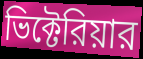
ভিক্টেরিয়ার